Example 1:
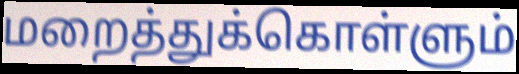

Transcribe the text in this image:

மறைத்துக்கொள்ளும்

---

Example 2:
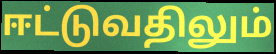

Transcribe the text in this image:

ஈட்டுவதிலும்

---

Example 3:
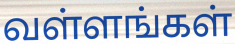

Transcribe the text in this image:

வள்ளங்கள்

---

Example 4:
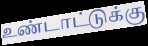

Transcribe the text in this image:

உண்டாட்டுக்கு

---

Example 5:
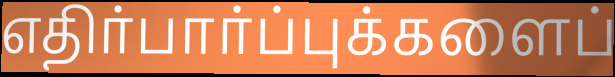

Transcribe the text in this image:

எதிர்பார்ப்புக்களைப்